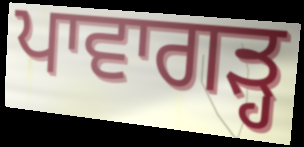
ਪਾਵਾਗੜ੍ਹ